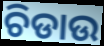
ଚିଡାଉ